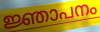
ജ്ഞാപനം